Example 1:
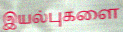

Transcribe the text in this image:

இயல்புகளை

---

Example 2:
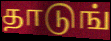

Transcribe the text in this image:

தாடுங்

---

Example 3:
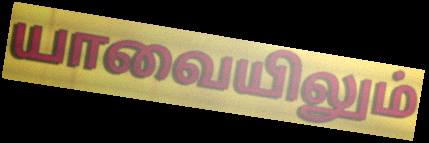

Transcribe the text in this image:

யாவையிலும்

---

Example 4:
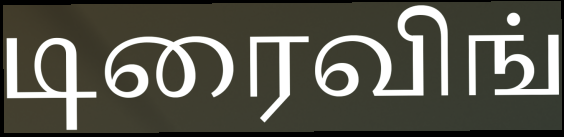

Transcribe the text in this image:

டிரைவிங்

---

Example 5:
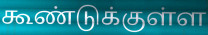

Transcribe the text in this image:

கூண்டுக்குள்ள